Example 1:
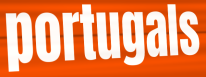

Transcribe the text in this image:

portugals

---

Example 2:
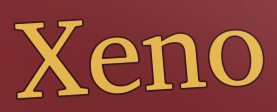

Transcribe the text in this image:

Xeno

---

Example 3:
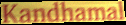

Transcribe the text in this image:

Kandhamal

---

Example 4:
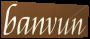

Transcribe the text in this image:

banvun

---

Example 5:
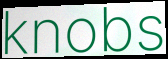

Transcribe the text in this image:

knobs